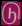
டு